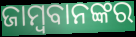
ଜାମ୍ବବାନଙ୍କର